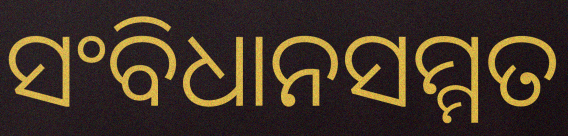
ସଂବିଧାନସମ୍ମତ